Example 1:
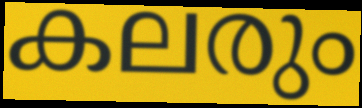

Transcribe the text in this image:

കലരും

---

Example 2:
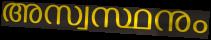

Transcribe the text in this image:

അസ്വസ്ഥനും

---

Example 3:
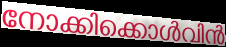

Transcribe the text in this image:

നോക്കിക്കൊൾവിൻ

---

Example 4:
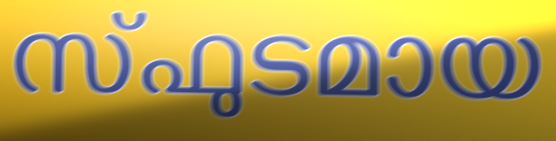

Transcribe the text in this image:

സ്ഫുടമായ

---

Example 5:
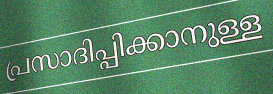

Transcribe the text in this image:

പ്രസാദിപ്പിക്കാനുള്ള